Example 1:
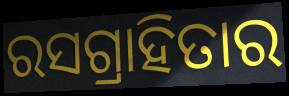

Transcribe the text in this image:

ରସଗ୍ରାହିତାର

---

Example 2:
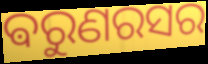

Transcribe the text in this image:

ଵରୁଣରସର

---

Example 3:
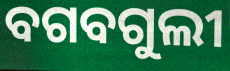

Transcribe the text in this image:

ବଗବଗୁଲୀ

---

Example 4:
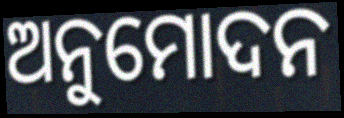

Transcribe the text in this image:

ଅନୁମୋଦନ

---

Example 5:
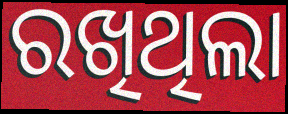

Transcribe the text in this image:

ରଖିଥିଲା